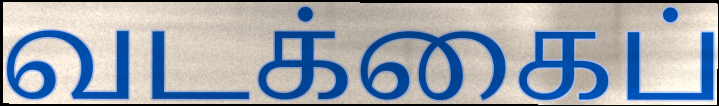
வடக்கைப்